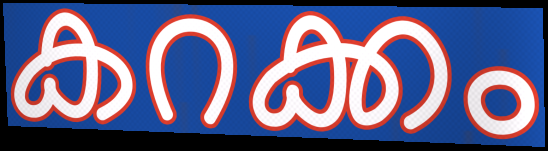
കറക്കം